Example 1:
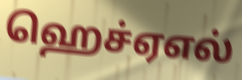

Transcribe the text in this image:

ஹெச்ஏஎல்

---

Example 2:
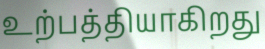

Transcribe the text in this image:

உற்பத்தியாகிறது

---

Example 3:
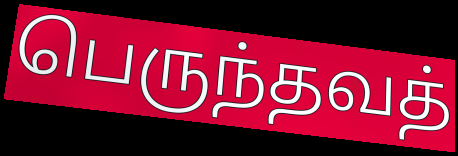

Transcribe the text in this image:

பெருந்தவத்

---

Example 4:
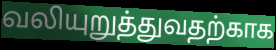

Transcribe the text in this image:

வலியுறுத்துவதற்காக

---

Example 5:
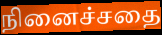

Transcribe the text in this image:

நினைச்சதை